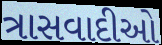
ત્રાસવાદીઓ